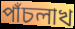
পাঁচলাখ